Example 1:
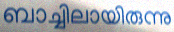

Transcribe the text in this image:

ബാച്ചിലായിരുന്നു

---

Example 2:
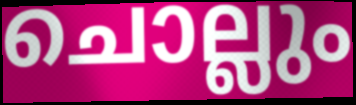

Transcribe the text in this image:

ചൊല്ലും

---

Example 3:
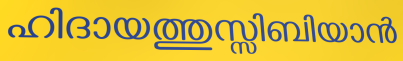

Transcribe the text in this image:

ഹിദായത്തുസ്സിബിയാൻ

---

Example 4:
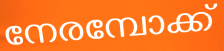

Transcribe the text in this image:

നേരമ്പോക്ക്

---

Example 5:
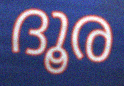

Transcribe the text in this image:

ദൂര